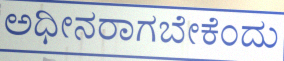
ಅಧೀನರಾಗಬೇಕೆಂದು